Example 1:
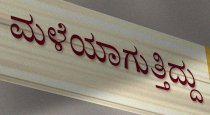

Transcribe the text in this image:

ಮಳೆಯಾಗುತ್ತಿದ್ದು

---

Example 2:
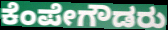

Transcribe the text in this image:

ಕೆಂಪೇಗೌಡರು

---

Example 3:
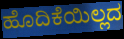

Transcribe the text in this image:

ಹೊದಿಕೆಯಿಲ್ಲದ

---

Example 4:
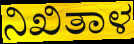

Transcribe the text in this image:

ನಿಖಿತಾಳ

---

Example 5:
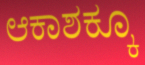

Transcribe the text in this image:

ಆಕಾಶಕ್ಕೂ